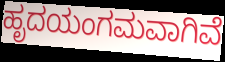
ಹೃದಯಂಗಮವಾಗಿವೆ